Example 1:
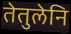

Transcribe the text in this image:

तेतुलेनि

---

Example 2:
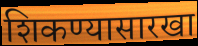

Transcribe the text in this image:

शिकण्यासारखा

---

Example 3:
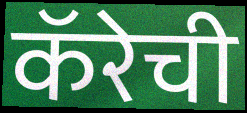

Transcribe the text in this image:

कॅरेची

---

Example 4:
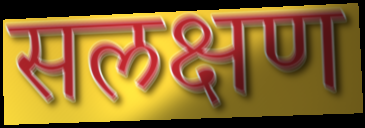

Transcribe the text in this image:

सलक्षण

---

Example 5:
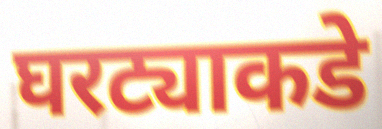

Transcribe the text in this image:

घरट्याकडे